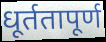
धूर्ततापूर्ण